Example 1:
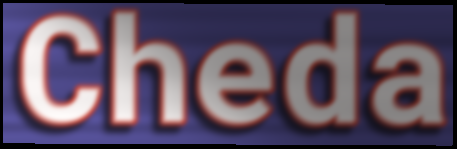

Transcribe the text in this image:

Cheda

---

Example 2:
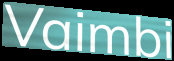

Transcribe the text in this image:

Vaimbi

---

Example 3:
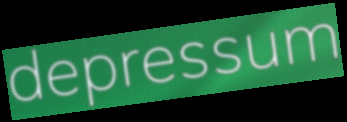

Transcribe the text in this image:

depressum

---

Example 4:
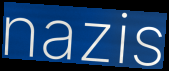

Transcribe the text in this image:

nazis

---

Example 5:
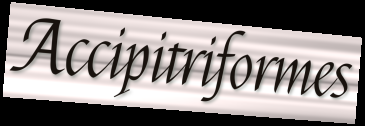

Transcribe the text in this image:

Accipitriformes